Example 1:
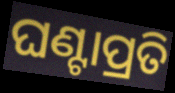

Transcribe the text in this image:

ଘଣ୍ଟାପ୍ରତି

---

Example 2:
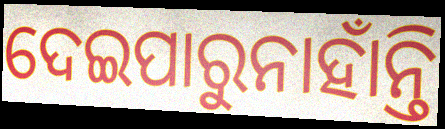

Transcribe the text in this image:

ଦେଇପାରୁନାହାଁନ୍ତି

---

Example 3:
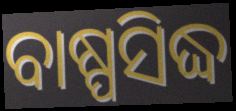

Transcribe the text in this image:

ବାଷ୍ପସିଦ୍ଧ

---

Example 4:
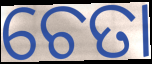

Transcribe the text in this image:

ଚେତା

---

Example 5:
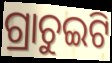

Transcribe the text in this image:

ଗ୍ରାଚୁଇଟି